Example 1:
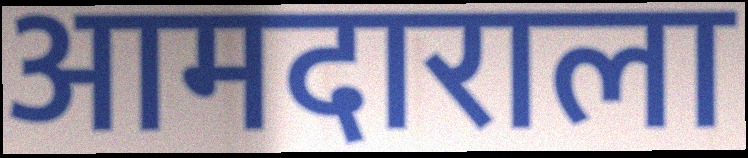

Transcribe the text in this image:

आमदाराला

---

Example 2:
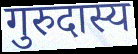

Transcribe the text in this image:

गुरुदास्य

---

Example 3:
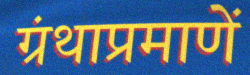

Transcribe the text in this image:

ग्रंथाप्रमाणें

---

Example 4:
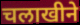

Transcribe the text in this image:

चलाखीने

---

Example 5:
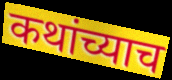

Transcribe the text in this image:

कथांच्याच